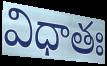
విధాతః